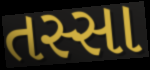
તસ્સા